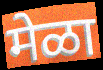
मेळा